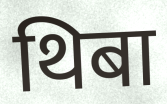
थिबा